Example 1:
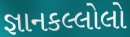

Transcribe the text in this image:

જ્ઞાનકલ્લોલો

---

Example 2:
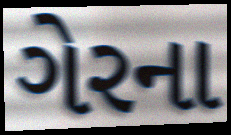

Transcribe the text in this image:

ગેરના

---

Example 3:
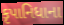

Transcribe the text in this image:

કૃપાનિધાના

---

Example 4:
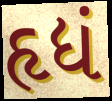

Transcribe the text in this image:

હૃદ્યં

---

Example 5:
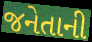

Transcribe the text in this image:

જનેતાની